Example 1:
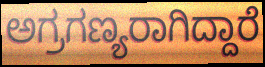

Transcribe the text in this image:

ಅಗ್ರಗಣ್ಯರಾಗಿದ್ದಾರೆ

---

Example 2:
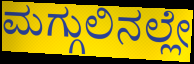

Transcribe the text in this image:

ಮಗ್ಗುಲಿನಲ್ಲೇ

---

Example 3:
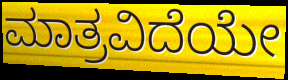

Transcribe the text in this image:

ಮಾತ್ರವಿದೆಯೇ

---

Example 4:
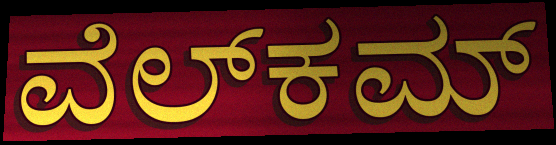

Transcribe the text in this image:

ವೆಲ್‍ಕಮ್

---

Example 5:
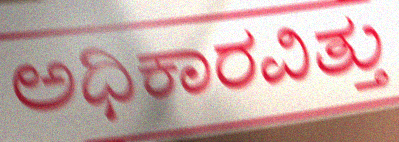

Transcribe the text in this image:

ಅಧಿಕಾರವಿತ್ತು